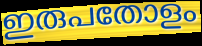
ഇരുപതോളം